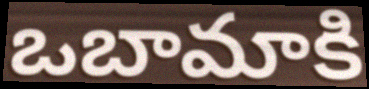
ఒబామాకి